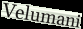
Velumani